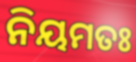
ନିୟମତଃ